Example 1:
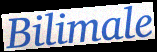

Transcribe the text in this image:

Bilimale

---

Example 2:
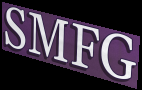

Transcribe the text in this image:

SMFG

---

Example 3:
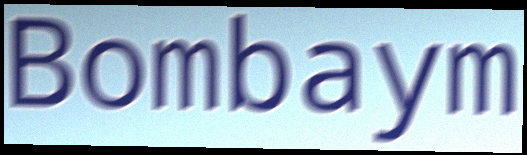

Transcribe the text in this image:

Bombaym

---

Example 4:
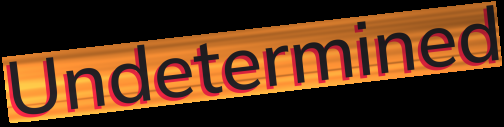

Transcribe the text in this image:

Undetermined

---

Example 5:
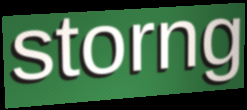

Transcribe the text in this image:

storng